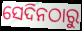
ସେଦିନଠାରୁ